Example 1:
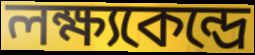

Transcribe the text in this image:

লক্ষ্যকেন্দ্রে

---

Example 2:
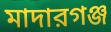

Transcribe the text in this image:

মাদারগঞ্জ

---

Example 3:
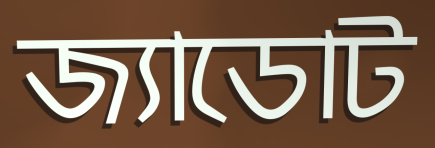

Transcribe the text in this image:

জ্যাডোট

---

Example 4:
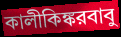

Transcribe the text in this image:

কালীকিঙ্করবাবু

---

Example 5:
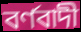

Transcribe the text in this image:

বর্ণবাদী